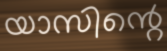
യാസിന്റെ